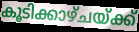
കൂടിക്കാഴ്ചയ്ക്ക്